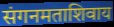
संगनमताशिवाय